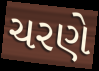
ચરણે